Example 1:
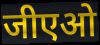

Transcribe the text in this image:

जीएओ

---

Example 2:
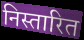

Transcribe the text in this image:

निस्तारित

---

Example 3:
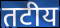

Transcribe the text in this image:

तटीय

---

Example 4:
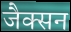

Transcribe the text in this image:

जैक्सन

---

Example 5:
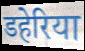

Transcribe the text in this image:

डहेरिया